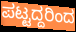
ಪಟ್ಟದ್ದರಿಂದ